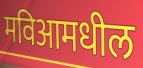
मविआमधील